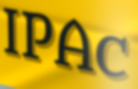
IPAc